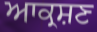
ਆਕ੍ਰਸ਼ਣ